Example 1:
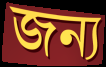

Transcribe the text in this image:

জন্য়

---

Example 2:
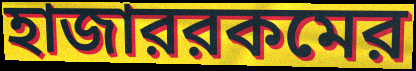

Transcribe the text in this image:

হাজাররকমের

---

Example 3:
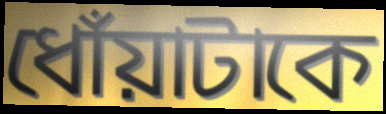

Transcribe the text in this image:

ধোঁয়াটাকে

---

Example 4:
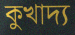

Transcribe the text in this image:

কুখাদ্য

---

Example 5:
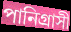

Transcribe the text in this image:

পানিগ্রাসী